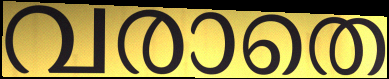
വരാതെ